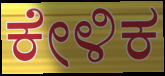
ಕೇಳಿಕ